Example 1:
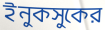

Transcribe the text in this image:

ইনুকসুকের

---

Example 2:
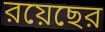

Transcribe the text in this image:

রয়েছের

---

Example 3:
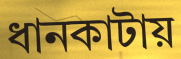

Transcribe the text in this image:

ধানকাটায়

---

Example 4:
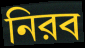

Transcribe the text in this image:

নিরব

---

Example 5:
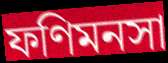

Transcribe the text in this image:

ফণিমনসা